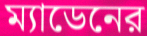
ম্যাডেনের